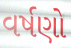
વર્ષણો